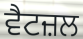
ਵੈਟਜ਼ਲ